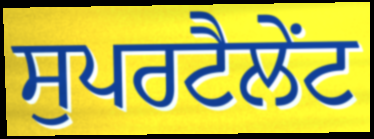
ਸੁਪਰਟੈਲੇਂਟ